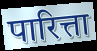
पारित्ता